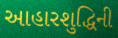
આહારશુદ્ધિની